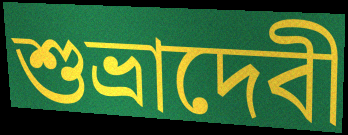
শুভ্রাদেবী